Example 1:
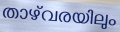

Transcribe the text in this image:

താഴ്‌വരയിലും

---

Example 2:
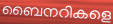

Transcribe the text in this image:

ബൈനറികളെ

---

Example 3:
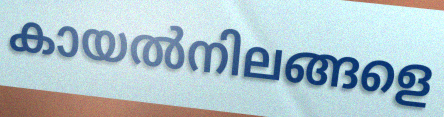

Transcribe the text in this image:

കായൽനിലങ്ങളെ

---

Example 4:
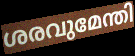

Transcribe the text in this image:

ശരവുമേന്തി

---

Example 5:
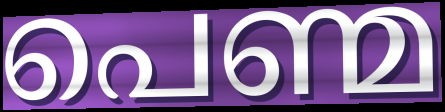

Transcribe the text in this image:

പെണ്മ